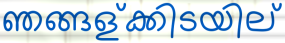
ഞങ്ങള്ക്കിടയില്